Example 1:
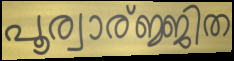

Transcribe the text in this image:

പൂര്വാര്ജ്ജിത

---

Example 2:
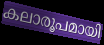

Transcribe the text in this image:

കലാരൂപമായി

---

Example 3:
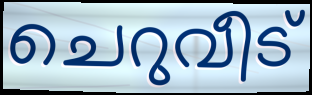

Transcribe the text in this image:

ചെറുവീട്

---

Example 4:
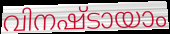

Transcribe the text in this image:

വിനഷ്ടായാം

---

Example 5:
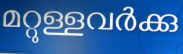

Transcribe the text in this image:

മറ്റുള്ളവർക്കു